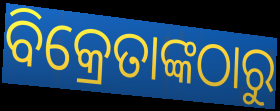
ବିକ୍ରେତାଙ୍କଠାରୁ